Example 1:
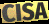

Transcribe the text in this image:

CISA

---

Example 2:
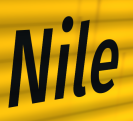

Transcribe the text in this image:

Nile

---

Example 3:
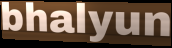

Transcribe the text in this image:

bhalyun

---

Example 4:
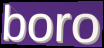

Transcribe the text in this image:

boro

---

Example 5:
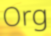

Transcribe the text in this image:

Org